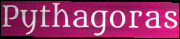
Pythagoras